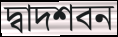
দ্বাদশবন